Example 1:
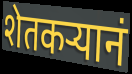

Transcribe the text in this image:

शेतकऱ्यानं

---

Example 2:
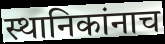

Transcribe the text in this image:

स्थानिकांनाच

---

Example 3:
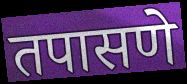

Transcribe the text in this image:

तपासणे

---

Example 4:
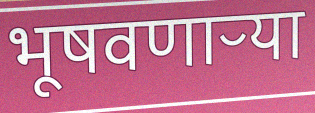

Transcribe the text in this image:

भूषवणाऱ्या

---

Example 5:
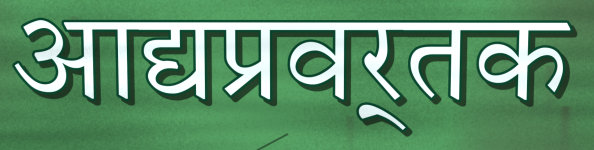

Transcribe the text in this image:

आद्यप्रवर्तक